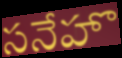
సనేహొ